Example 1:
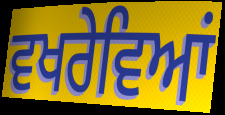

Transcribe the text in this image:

ਵਖਰੇਵਿਆਂ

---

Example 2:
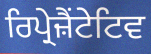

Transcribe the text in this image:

ਰਿਪ੍ਰੇਜ਼ੈਂਟੇਟਿਵ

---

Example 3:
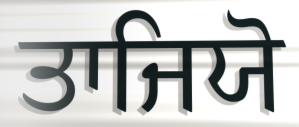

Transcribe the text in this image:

ਤਾਜਿਯੋ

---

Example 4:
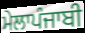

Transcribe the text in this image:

ਮੇਲਾਪੰਜਾਬੀ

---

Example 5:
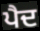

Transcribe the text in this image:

ਪੈਦ